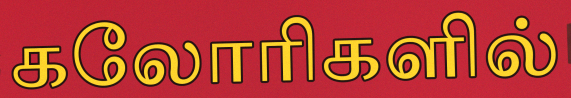
கலோரிகளில்